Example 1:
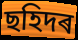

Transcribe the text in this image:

ছহিদৰ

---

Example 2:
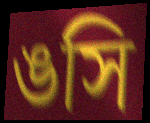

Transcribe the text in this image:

ঙসি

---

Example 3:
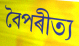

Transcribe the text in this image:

বৈপৰীত্য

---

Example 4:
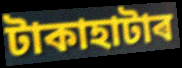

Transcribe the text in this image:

টাকাহাটাৰ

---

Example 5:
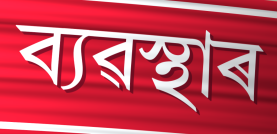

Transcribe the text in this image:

ব্যৱস্থাৰ